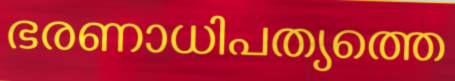
ഭരണാധിപത്യത്തെ